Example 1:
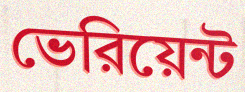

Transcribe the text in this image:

ভেরিয়েন্ট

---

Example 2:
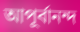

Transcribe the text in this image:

আপূর্বানন্দ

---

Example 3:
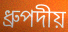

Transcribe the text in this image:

ধ্রুপদীয়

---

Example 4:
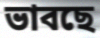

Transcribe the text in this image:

ভাবছে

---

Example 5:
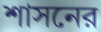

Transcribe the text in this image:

শাসনের